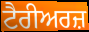
ਟੈਰੀਅਰਜ਼